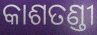
କାଶତଣ୍ଡୀ